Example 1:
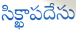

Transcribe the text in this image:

సిక్ఖాపదేసు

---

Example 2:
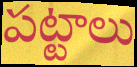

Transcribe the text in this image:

పట్టాలు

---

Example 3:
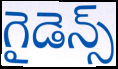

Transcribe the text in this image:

గైడెన్స్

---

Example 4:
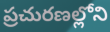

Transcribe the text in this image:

ప్రచురణల్లోని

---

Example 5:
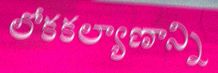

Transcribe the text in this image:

లోకకల్యాణాన్ని